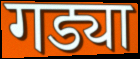
गड्या